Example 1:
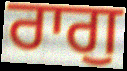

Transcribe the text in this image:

ਰਾਗੁ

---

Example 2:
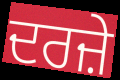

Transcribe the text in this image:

ਦਰਜ਼ੇ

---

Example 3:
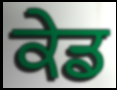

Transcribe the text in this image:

ਕੇਡ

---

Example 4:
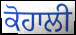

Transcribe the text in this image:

ਕੋਹਾਲੀ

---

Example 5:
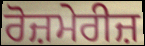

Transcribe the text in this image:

ਰੋਜ਼ਮੇਰੀਜ਼